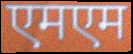
एमएम